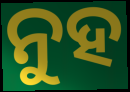
ନୁହ